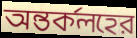
অন্তর্কলহের